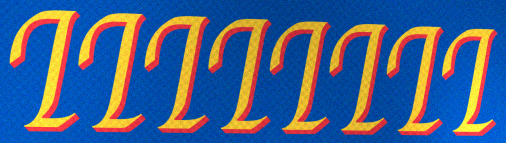
IIIIIIII